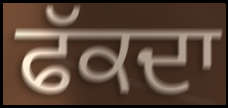
ਫੱਕਦਾ